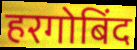
हरगोबिंद